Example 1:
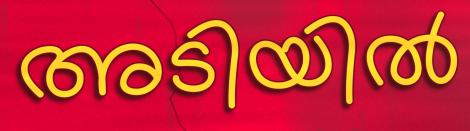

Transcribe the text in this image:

അടിയിൽ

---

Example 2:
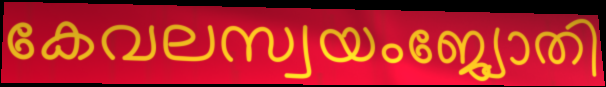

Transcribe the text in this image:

കേവലസ്വയംജ്യോതി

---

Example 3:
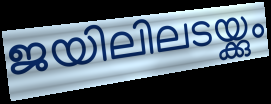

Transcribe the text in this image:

ജയിലിലടയ്ക്കും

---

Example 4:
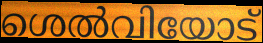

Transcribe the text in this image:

ശെൽവിയോട്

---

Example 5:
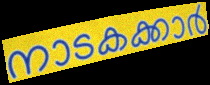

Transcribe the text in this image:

നാടകക്കാർ